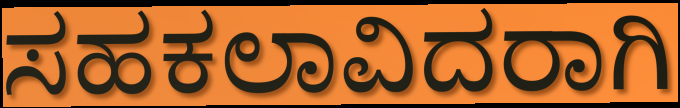
ಸಹಕಲಾವಿದರಾಗಿ